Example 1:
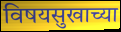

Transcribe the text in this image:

विषयसुखाच्या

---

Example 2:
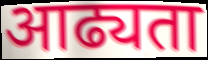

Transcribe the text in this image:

आढ्यता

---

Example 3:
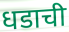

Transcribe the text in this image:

धडाची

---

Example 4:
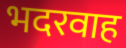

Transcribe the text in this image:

भदरवाह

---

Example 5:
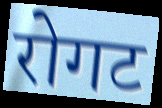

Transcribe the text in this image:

रोगट